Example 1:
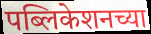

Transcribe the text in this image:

पब्लिकेशनच्या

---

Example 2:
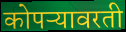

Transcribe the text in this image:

कोपऱ्यावरती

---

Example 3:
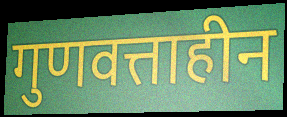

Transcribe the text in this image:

गुणवत्ताहीन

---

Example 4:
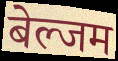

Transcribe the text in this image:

बेल्जम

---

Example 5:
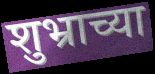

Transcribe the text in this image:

शुभ्राच्या